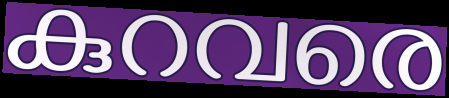
കുറവരെ